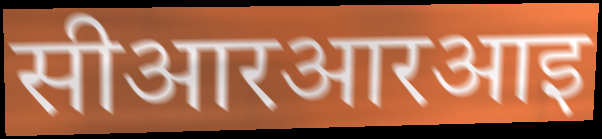
सीआरआरआइ